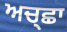
ਅਚ੍ਛਾ